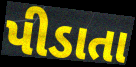
પીડાતા